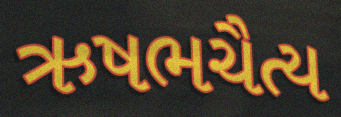
ઋષભચૈત્ય